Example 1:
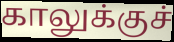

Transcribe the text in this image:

காலுக்குச்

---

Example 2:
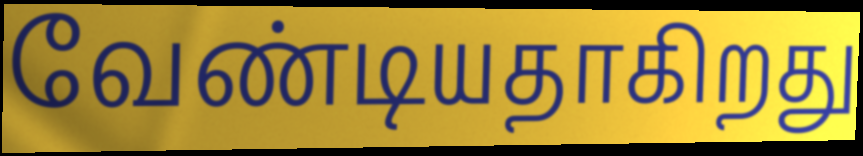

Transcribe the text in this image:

வேண்டியதாகிறது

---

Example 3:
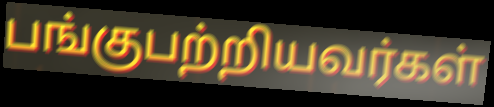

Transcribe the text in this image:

பங்குபற்றியவர்கள்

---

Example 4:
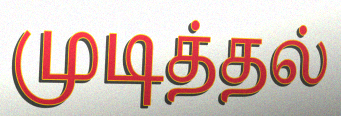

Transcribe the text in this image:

முடித்தல்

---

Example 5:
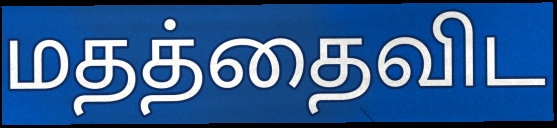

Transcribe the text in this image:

மதத்தைவிட